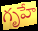
గృహే